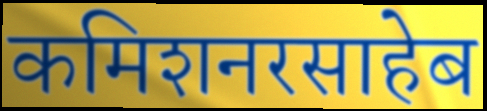
कमिशनरसाहेब